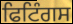
ਫਿਟਿੰਗਸ